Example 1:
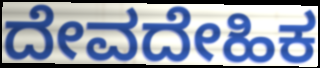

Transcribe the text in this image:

ದೇವದೇಹಿಕ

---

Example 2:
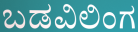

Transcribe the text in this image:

ಬಡವಿಲಿಂಗ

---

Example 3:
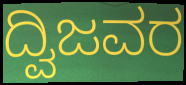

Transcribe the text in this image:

ದ್ವಿಜವರ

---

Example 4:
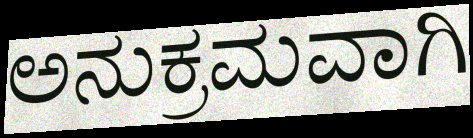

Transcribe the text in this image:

ಅನುಕ್ರಮವಾಗಿ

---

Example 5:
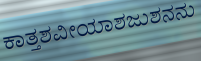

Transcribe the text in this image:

ಕಾತ್ತಶವೀಯಾಶಜುಶನನು